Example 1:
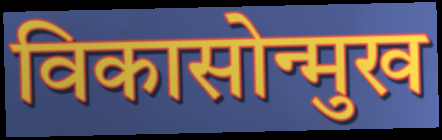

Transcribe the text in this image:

विकासोन्मुख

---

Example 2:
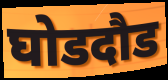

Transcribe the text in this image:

घोडदौड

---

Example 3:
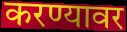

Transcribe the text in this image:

करण्यावर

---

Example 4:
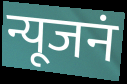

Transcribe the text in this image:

न्यूजनं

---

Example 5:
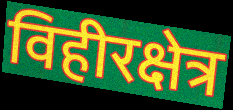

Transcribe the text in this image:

विहीरक्षेत्र